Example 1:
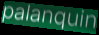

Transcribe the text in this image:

palanquin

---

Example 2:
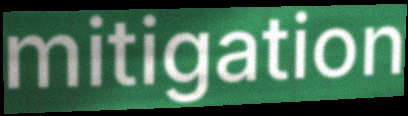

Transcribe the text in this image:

mitigation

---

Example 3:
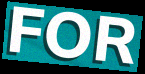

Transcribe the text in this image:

FOR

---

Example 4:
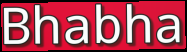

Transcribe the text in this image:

Bhabha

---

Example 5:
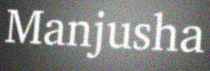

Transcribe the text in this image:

Manjusha